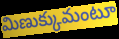
మిణుక్కుమంటూ